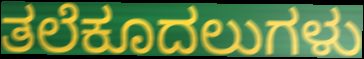
ತಲೆಕೂದಲುಗಳು